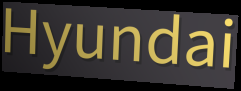
Hyundai